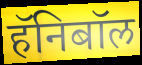
हॅनिबॉल